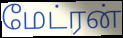
மேட்ரன்